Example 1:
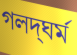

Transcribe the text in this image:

গলদ্‌ঘর্ম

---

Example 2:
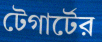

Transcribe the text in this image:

টেগার্টের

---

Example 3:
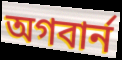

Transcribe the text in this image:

অগবার্ন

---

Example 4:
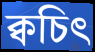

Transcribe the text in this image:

ক্বচিৎ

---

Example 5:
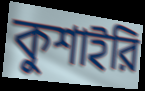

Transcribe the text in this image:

কুশাইরি